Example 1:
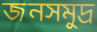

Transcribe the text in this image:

জনসমুদ্র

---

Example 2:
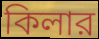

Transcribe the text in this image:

কিলার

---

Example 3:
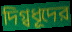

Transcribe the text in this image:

দিগ্বধূদের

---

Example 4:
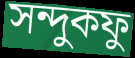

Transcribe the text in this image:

সন্দুকফু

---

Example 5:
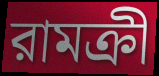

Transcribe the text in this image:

রামক্রী